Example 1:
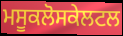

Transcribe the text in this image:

ਮਸੂਕਲੋਸਕੇਲਟਲ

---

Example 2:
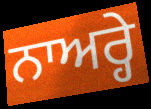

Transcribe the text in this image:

ਨਾਅਰ੍ਹੇ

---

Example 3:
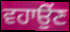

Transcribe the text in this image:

ਵਹਾਉਂਣ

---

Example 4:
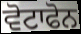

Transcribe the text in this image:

ਵੋਟਾਫੋਨ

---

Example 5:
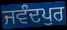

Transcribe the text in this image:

ਜਵੰਦਪੁਰ